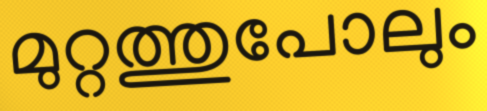
മുറ്റത്തുപോലും